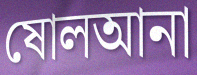
ষোলআনা